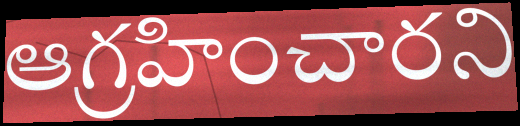
ఆగ్రహించారని